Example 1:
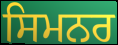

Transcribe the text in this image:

ਸਿਮਨਰ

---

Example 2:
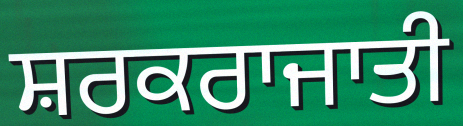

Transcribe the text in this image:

ਸ਼ਰਕਰਾਜਾਤੀ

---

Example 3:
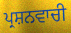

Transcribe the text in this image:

ਪ੍ਰਸ਼ਨਵਾਚੀ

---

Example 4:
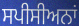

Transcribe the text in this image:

ਸਪੀਸੀਅਨਾਂ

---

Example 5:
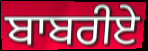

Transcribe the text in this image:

ਬਾਬਰੀਏ